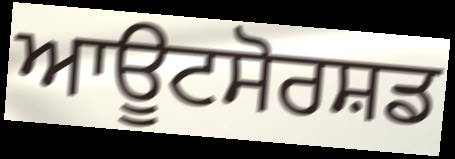
ਆਊਟਸੋਰਸ਼ਡ